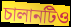
চালানটিও